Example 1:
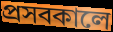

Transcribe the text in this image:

প্রসবকালে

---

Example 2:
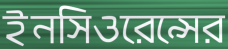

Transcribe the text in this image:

ইনসিওরেন্সের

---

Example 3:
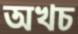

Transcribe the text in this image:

অখচ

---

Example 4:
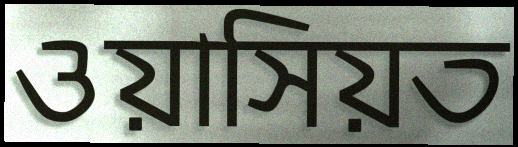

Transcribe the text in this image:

ওয়াসিয়ত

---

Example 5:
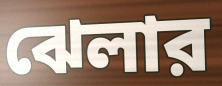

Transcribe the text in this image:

ঝেলার